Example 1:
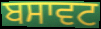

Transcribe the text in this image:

ਬਸਾਵਟ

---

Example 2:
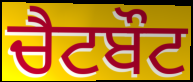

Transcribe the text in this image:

ਚੈਟਬੌਟ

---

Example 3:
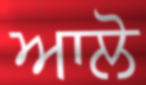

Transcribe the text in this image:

ਆਲੋ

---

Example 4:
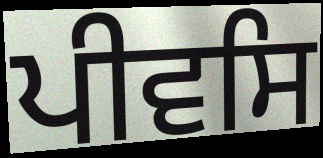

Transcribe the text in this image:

ਪੀਵਸਿ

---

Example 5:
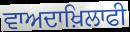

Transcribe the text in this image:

ਵਾਅਦਾਖ਼ਿਲਾਫੀ